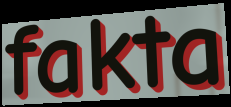
fakta